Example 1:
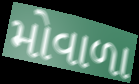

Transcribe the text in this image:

મોવાળા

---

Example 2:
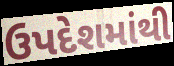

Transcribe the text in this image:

ઉપદેશમાંથી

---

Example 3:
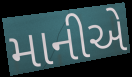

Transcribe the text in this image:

માનીએ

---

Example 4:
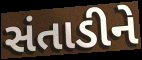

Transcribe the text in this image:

સંતાડીને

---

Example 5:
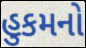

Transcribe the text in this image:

હુકમનો